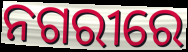
ନଗରୀରେ